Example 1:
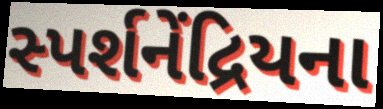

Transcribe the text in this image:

સ્પર્શનેંદ્રિયના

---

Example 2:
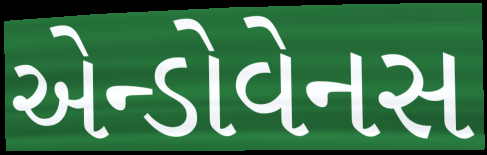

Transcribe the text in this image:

એન્ડોવેનસ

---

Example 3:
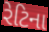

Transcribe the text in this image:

રેટિના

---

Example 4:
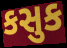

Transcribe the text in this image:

કસુક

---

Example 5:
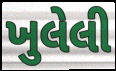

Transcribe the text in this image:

ખુલેલી